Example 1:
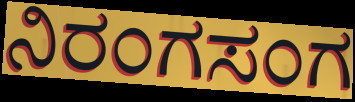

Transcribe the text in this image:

ನಿರಂಗಸಂಗ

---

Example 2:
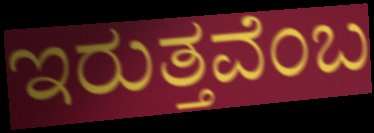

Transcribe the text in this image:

ಇರುತ್ತವೆಂಬ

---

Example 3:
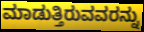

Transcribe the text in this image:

ಮಾಡುತ್ತಿರುವವರನ್ನು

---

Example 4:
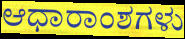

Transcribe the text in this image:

ಆಧಾರಾಂಶಗಳು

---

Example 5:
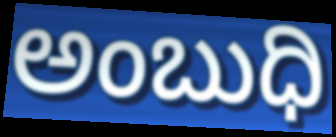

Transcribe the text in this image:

ಅಂಬುಧಿ